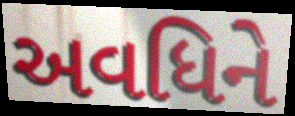
અવધિને